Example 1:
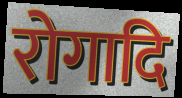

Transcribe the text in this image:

रोगादि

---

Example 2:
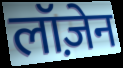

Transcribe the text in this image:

लॉज़ेन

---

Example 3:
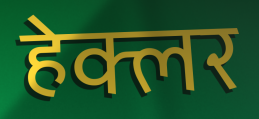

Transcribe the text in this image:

हेक्लर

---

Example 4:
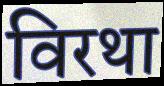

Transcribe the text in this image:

विरथा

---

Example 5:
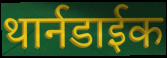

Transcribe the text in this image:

थार्नडाईक